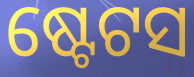
ଷ୍ଟେଟସ